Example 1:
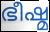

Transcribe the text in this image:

ഭീഷ്മ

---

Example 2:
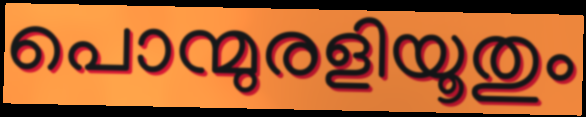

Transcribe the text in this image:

പൊന്മുരളിയൂതും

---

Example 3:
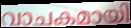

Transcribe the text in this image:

വാചകമായി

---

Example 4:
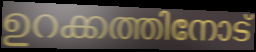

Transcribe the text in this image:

ഉറക്കത്തിനോട്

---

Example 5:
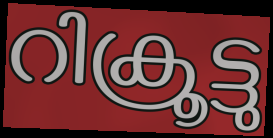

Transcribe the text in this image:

റിക്രൂട്ടു